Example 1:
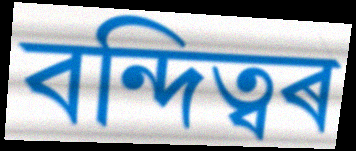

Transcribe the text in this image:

বন্দিত্বৰ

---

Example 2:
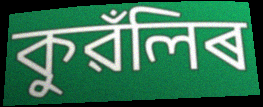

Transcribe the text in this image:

কুৱঁলিৰ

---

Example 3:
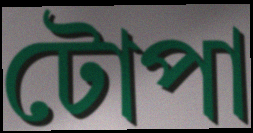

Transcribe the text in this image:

টোপা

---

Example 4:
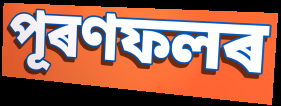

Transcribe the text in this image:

পূৰণফলৰ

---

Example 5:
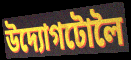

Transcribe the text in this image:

উদ্যোগটোলৈ